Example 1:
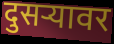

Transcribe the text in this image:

दुसऱ्यावर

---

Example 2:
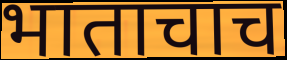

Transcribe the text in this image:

भाताचाच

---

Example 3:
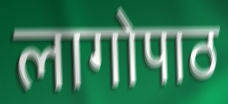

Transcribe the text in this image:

लागोपाठ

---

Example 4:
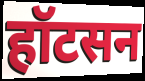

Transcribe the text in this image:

हॉटसन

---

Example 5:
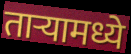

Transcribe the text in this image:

ताऱ्यामध्ये